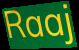
Raaj